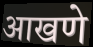
आखणे